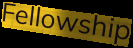
Fellowship